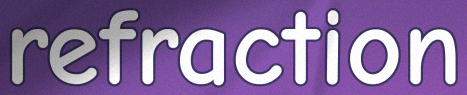
refraction